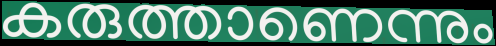
കരുത്താണെന്നും